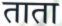
ताता